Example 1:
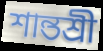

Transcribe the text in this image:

শান্তশ্রী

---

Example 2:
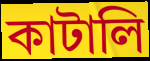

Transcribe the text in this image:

কাটালি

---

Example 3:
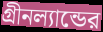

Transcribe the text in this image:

গ্রীনল্যান্ডের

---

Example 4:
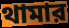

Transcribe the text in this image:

থামার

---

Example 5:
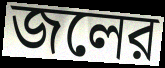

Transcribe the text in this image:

জলের